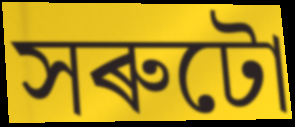
সৰুটো